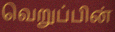
வெறுப்பின்